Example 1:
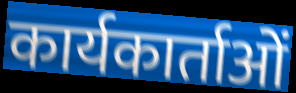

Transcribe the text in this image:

कार्यकार्ताओं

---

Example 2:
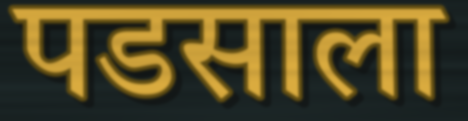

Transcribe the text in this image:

पडसाला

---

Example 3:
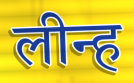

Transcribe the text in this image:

लीन्ह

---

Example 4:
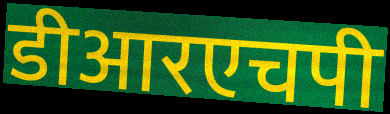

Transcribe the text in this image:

डीआरएचपी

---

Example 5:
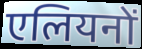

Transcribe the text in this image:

एलियनों